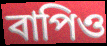
বাপিও